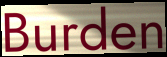
Burden